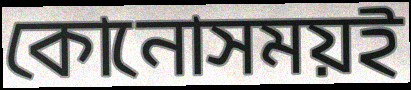
কোনোসময়ই